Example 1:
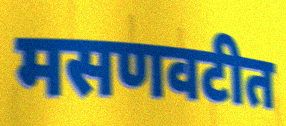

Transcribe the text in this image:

मसणवटीत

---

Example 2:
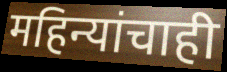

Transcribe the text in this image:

महिन्यांचाही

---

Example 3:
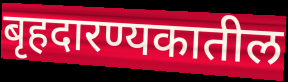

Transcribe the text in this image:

बृहदारण्यकातील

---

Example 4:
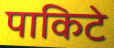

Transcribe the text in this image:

पाकिटे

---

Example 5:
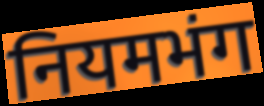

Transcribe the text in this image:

नियमभंग